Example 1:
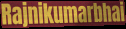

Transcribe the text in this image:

Rajnikumarbhai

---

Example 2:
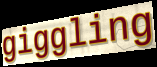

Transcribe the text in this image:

giggling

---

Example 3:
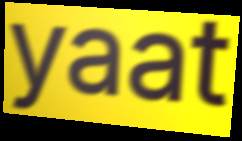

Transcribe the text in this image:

yaat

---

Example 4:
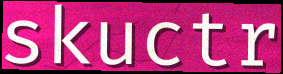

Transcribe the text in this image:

skuctr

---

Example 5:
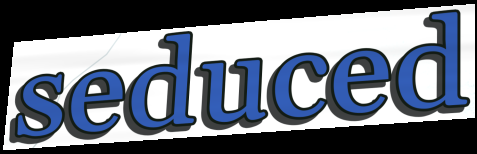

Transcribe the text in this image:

seduced